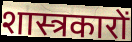
शास्त्रकारों